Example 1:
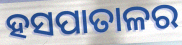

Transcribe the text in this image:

ହସପାତାଳର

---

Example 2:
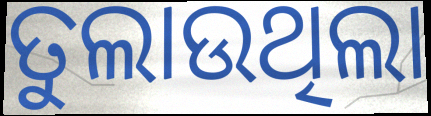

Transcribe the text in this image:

ତୁଲାଉଥିଲା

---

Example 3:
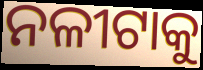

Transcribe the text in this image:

ନଳୀଟାକୁ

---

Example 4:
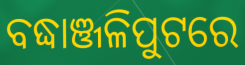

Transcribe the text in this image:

ବଦ୍ଧାଞ୍ଜଳିପୁଟରେ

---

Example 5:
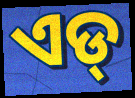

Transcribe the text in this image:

ଏଡ୍